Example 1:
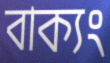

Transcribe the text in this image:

বাক্যং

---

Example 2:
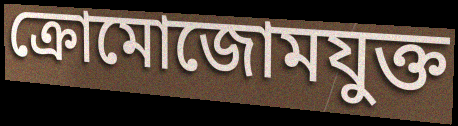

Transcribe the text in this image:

ক্রোমোজোমযুক্ত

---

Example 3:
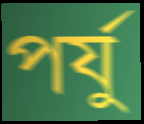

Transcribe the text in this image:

পর্যু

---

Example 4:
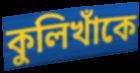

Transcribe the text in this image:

কুলিখাঁকে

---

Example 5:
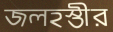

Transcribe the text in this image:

জলহস্তীর